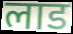
लाड